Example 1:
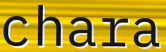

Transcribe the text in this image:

chara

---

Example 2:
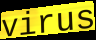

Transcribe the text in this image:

virus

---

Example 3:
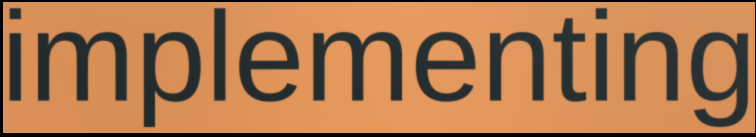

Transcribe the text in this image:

implementing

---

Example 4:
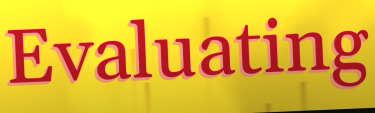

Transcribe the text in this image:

Evaluating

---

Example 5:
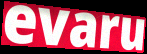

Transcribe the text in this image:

evaru